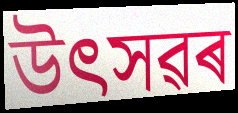
উৎসৱৰ